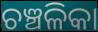
ଚଞ୍ଚଳିକା